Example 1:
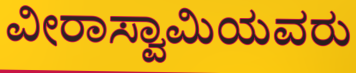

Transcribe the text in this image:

ವೀರಾಸ್ವಾಮಿಯವರು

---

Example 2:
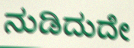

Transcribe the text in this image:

ನುಡಿದುದೇ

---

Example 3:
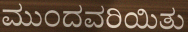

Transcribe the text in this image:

ಮುಂದವರಿಯಿತು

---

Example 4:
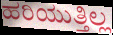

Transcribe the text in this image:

ಹರಿಯುತ್ತಿಲ್ಲ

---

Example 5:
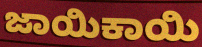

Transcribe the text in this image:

ಜಾಯಿಕಾಯಿ